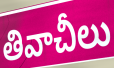
తివాచీలు